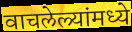
वाचलेल्यांमध्ये